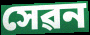
সেৱন